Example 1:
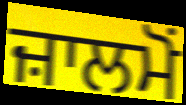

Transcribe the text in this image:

ਜ਼ਾਲਮੋਂ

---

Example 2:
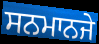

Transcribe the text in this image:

ਸਨਮਾਨਜੇ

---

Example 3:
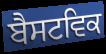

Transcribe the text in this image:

ਬੈਸਟਵਿਕ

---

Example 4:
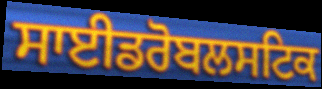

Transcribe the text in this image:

ਸਾਈਡਰੋਬਲਸਟਿਕ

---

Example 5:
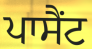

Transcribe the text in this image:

ਪਾਸੈਂਟ